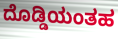
ದೊಡ್ಡಿಯಂತಹ